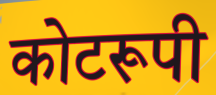
कोटरूपी